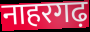
नाहरगढ़